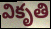
వికృతి